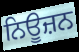
ਨਿਊਜ਼ਨ